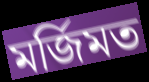
মর্জিমত